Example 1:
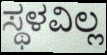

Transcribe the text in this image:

ಸ್ಥಳವಿಲ್ಲ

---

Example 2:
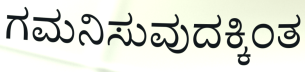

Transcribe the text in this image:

ಗಮನಿಸುವುದಕ್ಕಿಂತ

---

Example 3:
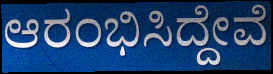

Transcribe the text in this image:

ಆರಂಭಿಸಿದ್ದೇವೆ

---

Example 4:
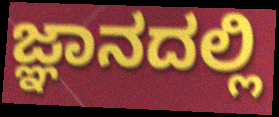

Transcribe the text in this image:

ಜ್ಞಾನದಲ್ಲಿ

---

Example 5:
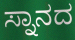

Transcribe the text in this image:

ಸ್ನಾನದ